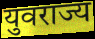
युवराज्य